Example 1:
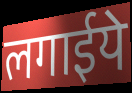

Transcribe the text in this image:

लगाईये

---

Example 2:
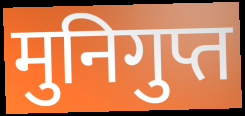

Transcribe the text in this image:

मुनिगुप्त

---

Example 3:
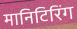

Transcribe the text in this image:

मानिटिरिंग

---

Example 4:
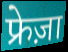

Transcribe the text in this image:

फ्रेज़ा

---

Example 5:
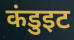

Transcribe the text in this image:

कंडुइट